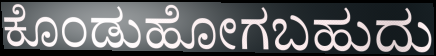
ಕೊಂಡುಹೋಗಬಹುದು